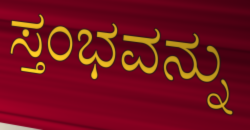
ಸ್ತಂಭವನ್ನು